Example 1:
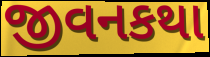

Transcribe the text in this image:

જીવનકથા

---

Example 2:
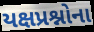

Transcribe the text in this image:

યક્ષપ્રશ્નોના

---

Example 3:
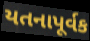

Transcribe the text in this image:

યતનાપૂર્વક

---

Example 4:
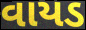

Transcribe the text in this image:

વાયડ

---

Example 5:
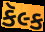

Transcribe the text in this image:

કૅલ્ક